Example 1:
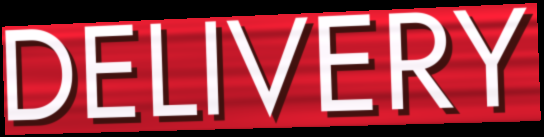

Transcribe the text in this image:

DELIVERY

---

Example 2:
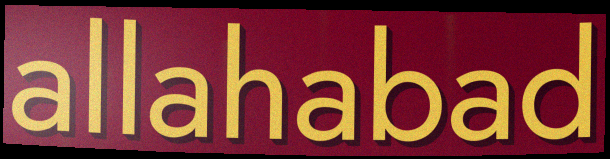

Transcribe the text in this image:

allahabad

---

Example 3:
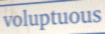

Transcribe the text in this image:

voluptuous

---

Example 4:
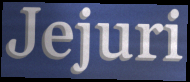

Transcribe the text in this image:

Jejuri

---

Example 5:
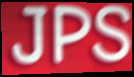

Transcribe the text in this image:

JPS